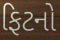
ફિટનો